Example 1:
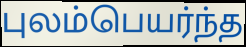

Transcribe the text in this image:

புலம்பெயர்ந்த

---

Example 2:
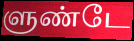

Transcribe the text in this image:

ளுண்டே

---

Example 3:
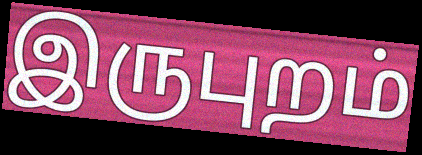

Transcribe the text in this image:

இருபுறம்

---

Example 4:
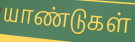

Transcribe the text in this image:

யாண்டுகள்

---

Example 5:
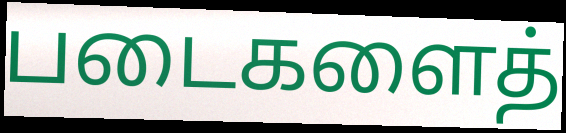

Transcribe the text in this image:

படைகளைத்